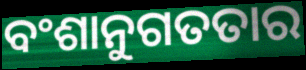
ବଂଶାନୁଗତତାର